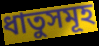
ধাতুসমূহ